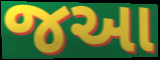
જઆ